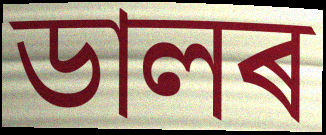
ডালৰ